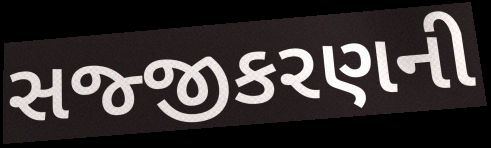
સજ્જીકરણની